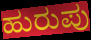
ಹುರುಪು